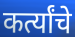
कर्त्यांचे